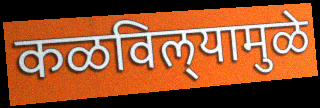
कळविल्यामुळे